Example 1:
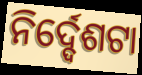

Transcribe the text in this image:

ନିର୍ଦ୍ଦେଶଟା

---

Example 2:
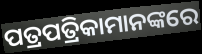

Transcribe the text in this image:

ପତ୍ରପତ୍ରିକାମାନଙ୍କରେ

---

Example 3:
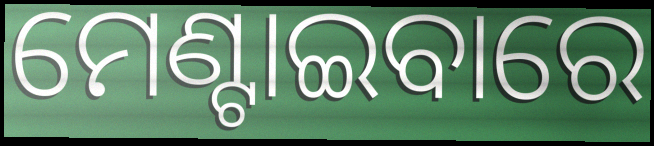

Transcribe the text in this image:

ମେଣ୍ଟାଇବାରେ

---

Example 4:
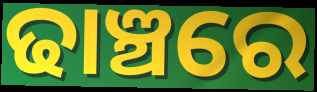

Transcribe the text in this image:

ଢାଞ୍ଚରେ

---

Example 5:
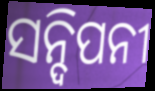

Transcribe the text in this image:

ସନ୍ଦିପନୀ